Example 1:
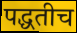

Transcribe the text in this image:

पद्धतीच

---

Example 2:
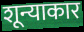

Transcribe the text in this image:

शून्याकार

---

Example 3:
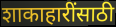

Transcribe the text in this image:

शाकाहारींसाठी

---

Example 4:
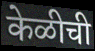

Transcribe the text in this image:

केळीची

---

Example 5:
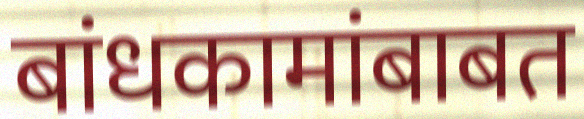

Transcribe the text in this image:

बांधकामांबाबत